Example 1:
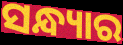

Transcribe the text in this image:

ସନ୍ଧ୍ୟାର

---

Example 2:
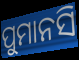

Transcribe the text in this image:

ପୁମାନସି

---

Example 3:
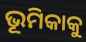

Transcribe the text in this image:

ଭୂମିକାକୁ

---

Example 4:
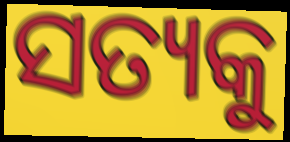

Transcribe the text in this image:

ସତ୍ୟକୁ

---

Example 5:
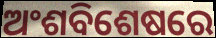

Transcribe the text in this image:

ଅଂଶବିଶେଷରେ